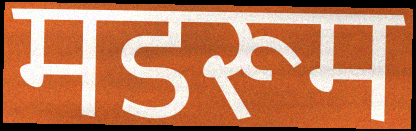
मडरूम